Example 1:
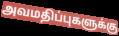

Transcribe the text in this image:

அவமதிப்புகளுக்கு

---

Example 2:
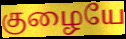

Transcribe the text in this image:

குழையே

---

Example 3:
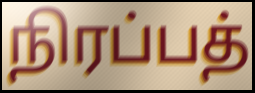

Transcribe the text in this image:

நிரப்பத்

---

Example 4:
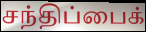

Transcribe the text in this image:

சந்திப்பைக்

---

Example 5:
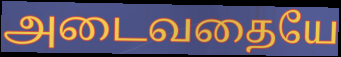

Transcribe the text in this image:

அடைவதையே